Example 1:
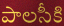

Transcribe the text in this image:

పాలసీకి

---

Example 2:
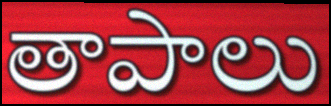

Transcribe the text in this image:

తాపాలు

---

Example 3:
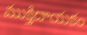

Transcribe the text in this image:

ముక్తిదాయకం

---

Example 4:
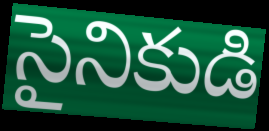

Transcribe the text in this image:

సైనికుడి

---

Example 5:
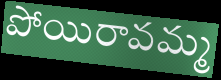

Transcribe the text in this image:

పోయిరావమ్మ